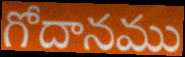
గోదానము